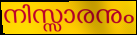
നിസ്സാരനും